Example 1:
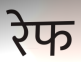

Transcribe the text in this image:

रेफ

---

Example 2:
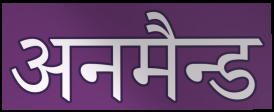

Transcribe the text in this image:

अनमैन्ड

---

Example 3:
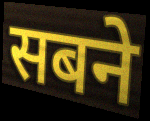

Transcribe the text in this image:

सबने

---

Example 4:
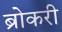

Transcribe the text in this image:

ब्रोकरी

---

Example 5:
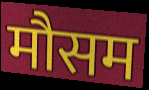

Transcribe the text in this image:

मौसम